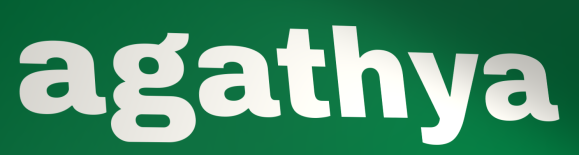
agathya